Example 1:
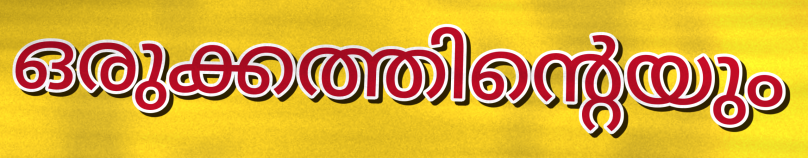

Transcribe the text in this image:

ഒരുക്കത്തിന്റെയും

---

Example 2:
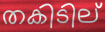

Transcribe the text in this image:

തകിടില്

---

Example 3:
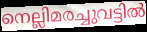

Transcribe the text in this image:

നെല്ലിമരച്ചുവട്ടിൽ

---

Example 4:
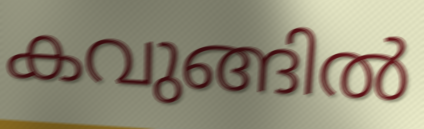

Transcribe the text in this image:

കവുങ്ങിൽ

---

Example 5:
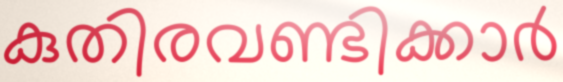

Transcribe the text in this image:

കുതിരവണ്ടിക്കാർ